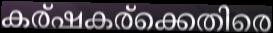
കര്ഷകര്ക്കെതിരെ